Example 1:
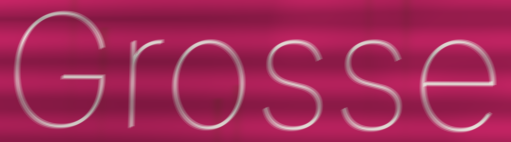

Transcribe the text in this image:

Grosse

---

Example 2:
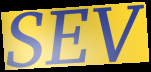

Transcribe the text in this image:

SEV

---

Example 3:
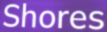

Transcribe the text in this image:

Shores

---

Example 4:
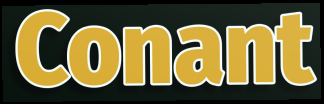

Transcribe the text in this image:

Conant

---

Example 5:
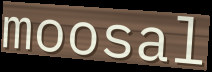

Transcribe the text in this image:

moosal